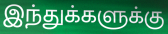
இந்துக்களுக்கு